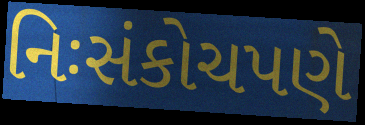
નિઃસંકોચપણે